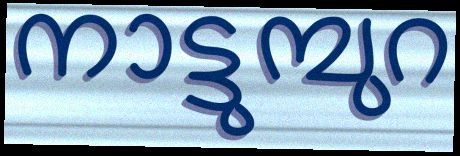
നാട്ടുമ്പുറ